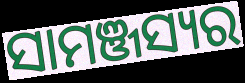
ସାମଞ୍ଜସ୍ୟର